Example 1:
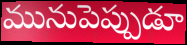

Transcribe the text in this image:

మునుపెప్పుడూ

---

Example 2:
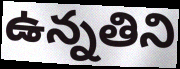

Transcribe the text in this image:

ఉన్నతిని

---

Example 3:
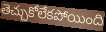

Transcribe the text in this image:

తెచ్చుకోలేకపోయింది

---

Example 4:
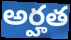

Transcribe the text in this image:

అర్హత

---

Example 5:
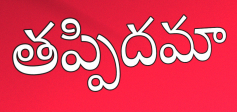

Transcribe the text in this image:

తప్పిదమా